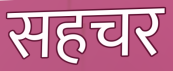
सहचर